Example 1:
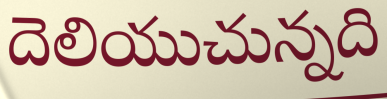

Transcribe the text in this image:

దెలియుచున్నది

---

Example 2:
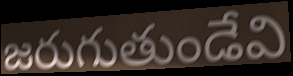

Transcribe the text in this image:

జరుగుతుండేవి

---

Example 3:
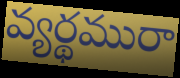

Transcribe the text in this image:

వ్యర్థమురా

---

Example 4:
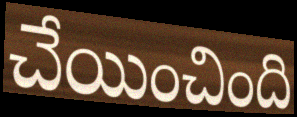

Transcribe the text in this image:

చేయించింది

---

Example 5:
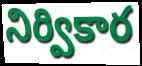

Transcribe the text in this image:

నిర్వికార